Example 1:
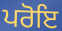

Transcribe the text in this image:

ਪਰੋਇ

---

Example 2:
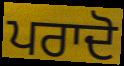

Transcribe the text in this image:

ਪਰਾਦੋ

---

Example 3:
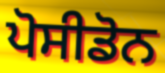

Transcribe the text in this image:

ਪੋਸੀਡੋਨ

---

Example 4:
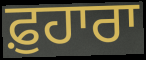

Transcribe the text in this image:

ਫ਼ੁਹਾਰਾ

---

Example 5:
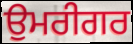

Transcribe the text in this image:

ਉਮਰੀਗਰ